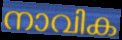
നാവിക